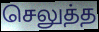
செலுத்த